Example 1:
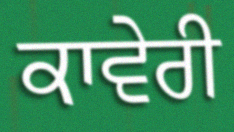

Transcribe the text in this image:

ਕਾਵੇਰੀ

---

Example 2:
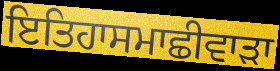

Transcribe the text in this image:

ਇਤਿਹਾਸਮਾਛੀਵਾੜਾ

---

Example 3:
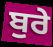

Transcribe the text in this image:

ਬੁਰੇ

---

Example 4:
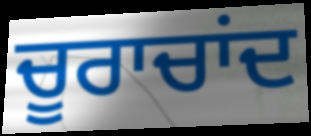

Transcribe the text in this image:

ਚੂਰਾਚਾਂਦ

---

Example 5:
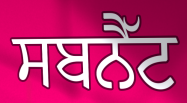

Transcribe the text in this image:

ਸਬਨੈੱਟ